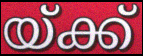
യ്ക്ക്